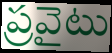
ప్రవైటు